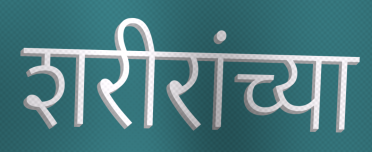
शरीरांच्या